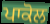
ਪਾਕੋਲ